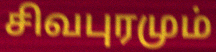
சிவபுரமும்